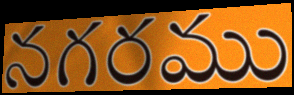
నగరము